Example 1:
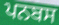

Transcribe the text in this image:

ਪਨਬਸ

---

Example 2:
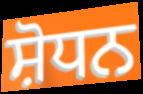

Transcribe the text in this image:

ਸ਼ੋਧਨ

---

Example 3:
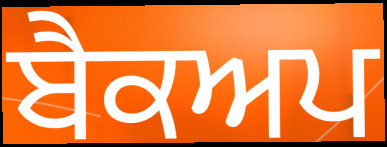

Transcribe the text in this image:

ਬੈਕਅਪ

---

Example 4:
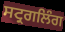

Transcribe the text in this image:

ਸਟ੍ਰਗਲਿੰਗ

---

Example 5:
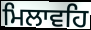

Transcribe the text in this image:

ਮਿਲਾਵਹਿ